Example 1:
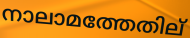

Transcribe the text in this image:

നാലാമത്തേതില്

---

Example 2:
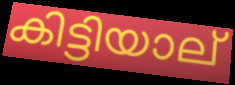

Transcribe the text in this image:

കിട്ടിയാല്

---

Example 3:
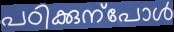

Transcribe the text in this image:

പഠിക്കുന്പോൾ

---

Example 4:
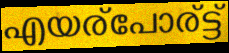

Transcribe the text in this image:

എയര്പോര്ട്ട്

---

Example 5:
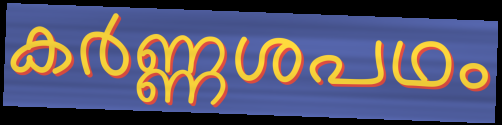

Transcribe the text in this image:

കർണ്ണശപഥം